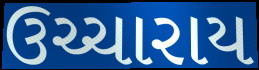
ઉચ્ચારાય